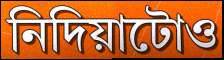
নিদিয়াটোও